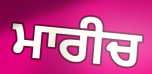
ਮਾਰੀਚ